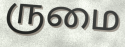
ருமை